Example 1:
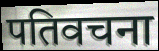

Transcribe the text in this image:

पतिवचना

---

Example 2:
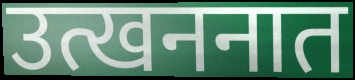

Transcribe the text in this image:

उत्खननात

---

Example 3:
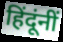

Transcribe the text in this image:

हिंदूंनीं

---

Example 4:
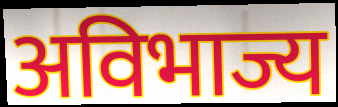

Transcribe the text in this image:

अविभाज्य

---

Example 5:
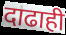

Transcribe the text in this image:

दाढाही